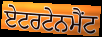
ਏਟਰਟੇਨਮੈਂਟ